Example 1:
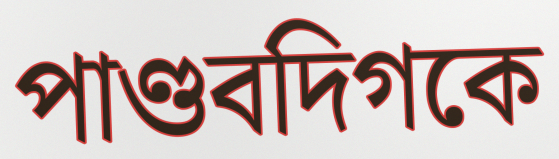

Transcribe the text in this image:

পাণ্ডবদিগকে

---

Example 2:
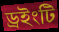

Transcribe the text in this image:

ড্রইংটি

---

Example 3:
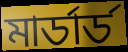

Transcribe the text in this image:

মার্ডার্ড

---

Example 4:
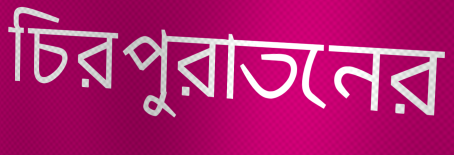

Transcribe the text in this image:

চিরপুরাতনের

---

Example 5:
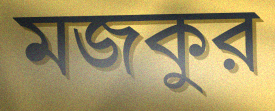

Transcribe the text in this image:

মজকুর